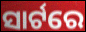
ସାର୍ଟରେ